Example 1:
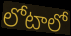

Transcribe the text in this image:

లోటాలో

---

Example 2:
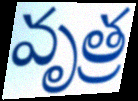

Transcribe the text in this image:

వృత్ర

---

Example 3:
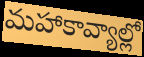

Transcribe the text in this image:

మహాకావ్యాల్లో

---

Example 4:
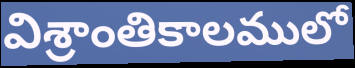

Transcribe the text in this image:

విశ్రాంతికాలములో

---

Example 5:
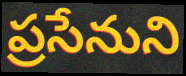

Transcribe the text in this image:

ప్రసేనుని